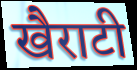
खैराटी